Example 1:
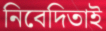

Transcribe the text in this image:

নিবেদিতাই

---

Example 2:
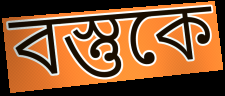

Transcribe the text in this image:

বস্তুকে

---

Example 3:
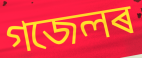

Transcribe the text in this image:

গজেলৰ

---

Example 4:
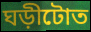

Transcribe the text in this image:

ঘড়ীটোত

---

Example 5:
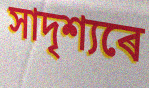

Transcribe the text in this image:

সাদৃশ্যৰে